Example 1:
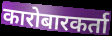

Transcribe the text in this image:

कारोबारकर्ता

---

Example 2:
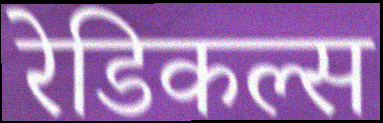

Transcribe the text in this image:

रेडिकल्स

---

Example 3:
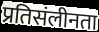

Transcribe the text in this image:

प्रतिसंलीनता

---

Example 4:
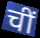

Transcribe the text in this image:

चीं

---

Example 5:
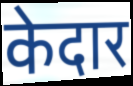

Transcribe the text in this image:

केदार